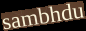
sambhdu